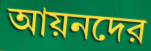
আয়নদের